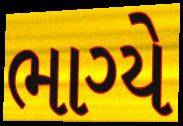
ભાગ્યે